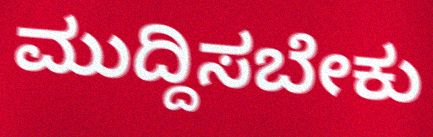
ಮುದ್ದಿಸಬೇಕು